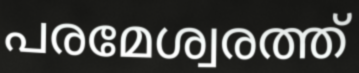
പരമേശ്വരത്ത്